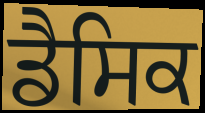
ਡੈਸਿਕ